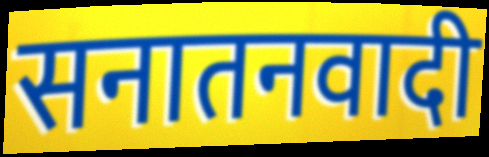
सनातनवादी